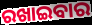
ରଖାଇବାର